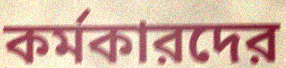
কর্মকারদের